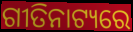
ଗୀତିନାଟ୍ୟରେ